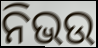
ନିଭଉ